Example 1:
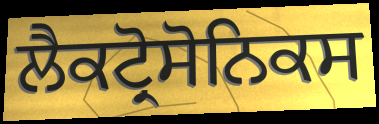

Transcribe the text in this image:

ਲੈਕਟ੍ਰੋਸੋਨਿਕਸ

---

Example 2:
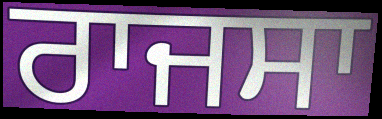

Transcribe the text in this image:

ਰਾਜਸਾ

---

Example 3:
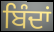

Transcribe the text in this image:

ਬਿੰਦਾਂ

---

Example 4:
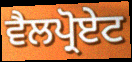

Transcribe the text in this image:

ਵੈਲਪ੍ਰੋਏਟ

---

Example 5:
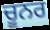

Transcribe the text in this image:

ਚੂਨਰ